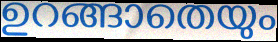
ഉറങ്ങാതെയും